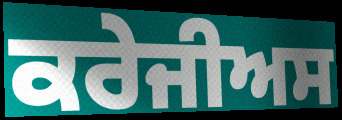
ਕਰੇਜੀਅਸ